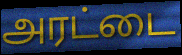
அரட்டை